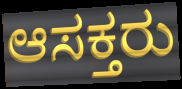
ಆಸಕ್ತರು